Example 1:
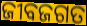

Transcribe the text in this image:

ଜୀବଜଗତ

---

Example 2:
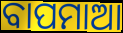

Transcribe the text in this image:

ବାପମାଆ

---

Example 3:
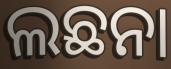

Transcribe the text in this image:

ଲଛନା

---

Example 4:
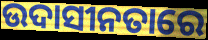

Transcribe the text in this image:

ଉଦାସୀନତାରେ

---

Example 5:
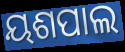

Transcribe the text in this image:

ୟଶପାଲ